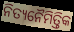
ନିତ୍ୟନୈମିତ୍ତିକ